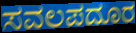
ಸವಲಪದೂರ